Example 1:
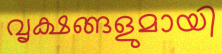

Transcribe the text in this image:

വൃക്ഷങ്ങളുമായി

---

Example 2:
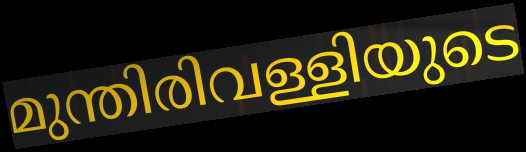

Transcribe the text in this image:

മുന്തിരിവള്ളിയുടെ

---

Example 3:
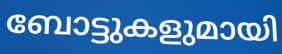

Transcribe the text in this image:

ബോട്ടുകളുമായി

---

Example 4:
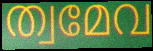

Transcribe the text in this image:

ത്വമേവ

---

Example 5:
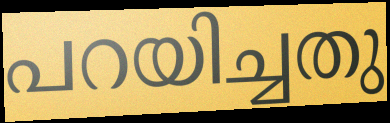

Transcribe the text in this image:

പറയിച്ചതു